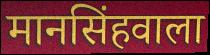
मानसिंहवाला